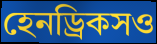
হেনড্রিকসও